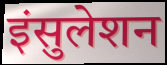
इंसुलेशन